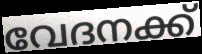
വേദനക്ക്